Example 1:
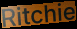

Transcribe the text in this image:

Ritchie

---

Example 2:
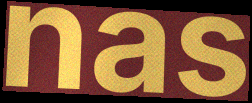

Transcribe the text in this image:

nas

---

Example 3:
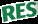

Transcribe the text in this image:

RES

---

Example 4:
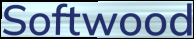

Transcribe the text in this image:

Softwood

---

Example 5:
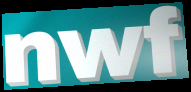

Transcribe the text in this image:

nwf